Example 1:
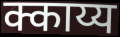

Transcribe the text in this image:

क्काय्य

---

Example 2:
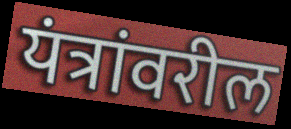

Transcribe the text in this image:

यंत्रांवरील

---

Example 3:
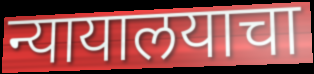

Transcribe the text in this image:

न्यायालयाचा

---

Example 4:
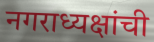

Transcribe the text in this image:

नगराध्यक्षांची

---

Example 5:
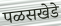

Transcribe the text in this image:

पळसखेडे